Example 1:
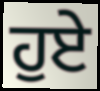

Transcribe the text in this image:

ਹੁਏ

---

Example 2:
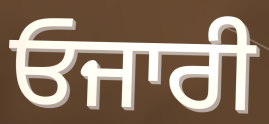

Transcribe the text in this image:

ਓਜਾਰੀ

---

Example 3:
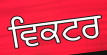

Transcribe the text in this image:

ਵਿਕਟਰ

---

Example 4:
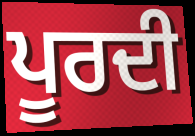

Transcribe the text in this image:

ਪੂਰਦੀ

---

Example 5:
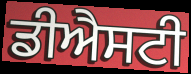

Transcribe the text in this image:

ਡੀਐਸਟੀ